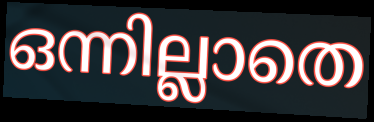
ഒന്നില്ലാതെ